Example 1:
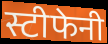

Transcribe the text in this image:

स्टीफेनी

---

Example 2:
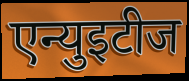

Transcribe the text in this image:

एन्युइटीज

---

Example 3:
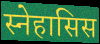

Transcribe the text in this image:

स्नेहासिस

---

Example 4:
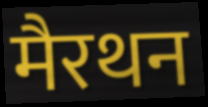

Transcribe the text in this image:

मैरथन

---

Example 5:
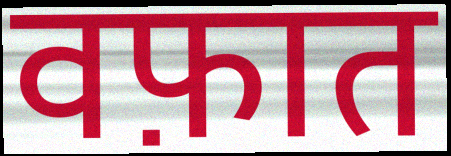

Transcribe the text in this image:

वफ़ात